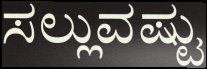
ಸಲ್ಲುವಷ್ಟು